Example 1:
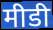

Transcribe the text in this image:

मीडी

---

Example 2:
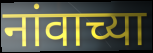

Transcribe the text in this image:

नांवाच्या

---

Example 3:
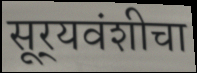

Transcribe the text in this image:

सूर्यवंशीचा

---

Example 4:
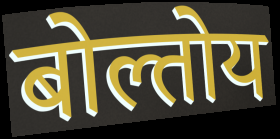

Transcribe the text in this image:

बोल्तोय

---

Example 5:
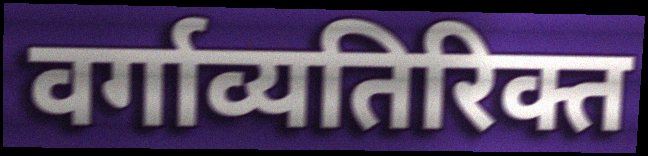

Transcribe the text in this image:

वर्गाव्यतिरिक्त